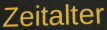
Zeitalter